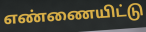
எண்ணையிட்டு